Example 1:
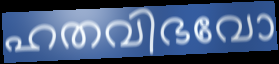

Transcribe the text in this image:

ഹതവിഭവോ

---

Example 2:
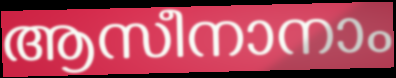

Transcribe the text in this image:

ആസീനാനാം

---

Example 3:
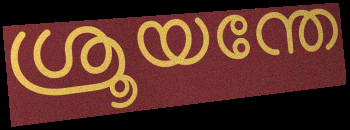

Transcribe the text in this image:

ശ്രൂയന്തേ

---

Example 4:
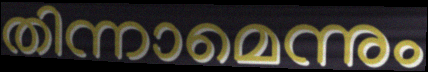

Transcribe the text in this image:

തിന്നാമെന്നും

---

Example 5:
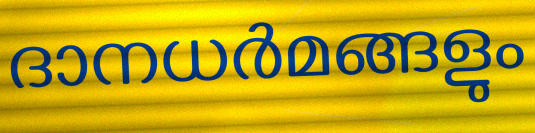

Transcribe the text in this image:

ദാനധർമങ്ങളും